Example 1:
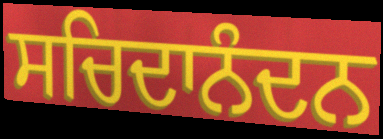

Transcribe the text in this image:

ਸਚਿਦਾਨੰਦਨ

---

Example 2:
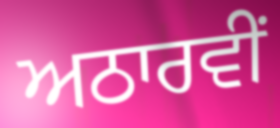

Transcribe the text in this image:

ਅਠਾਰਵੀਂ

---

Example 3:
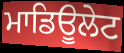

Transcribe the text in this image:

ਮਾਡਿਊਲੇਟ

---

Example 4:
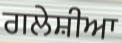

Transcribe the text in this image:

ਗਲੇਸ਼ੀਆ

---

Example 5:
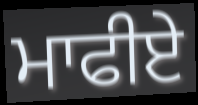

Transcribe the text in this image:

ਮਾਫੀਏ